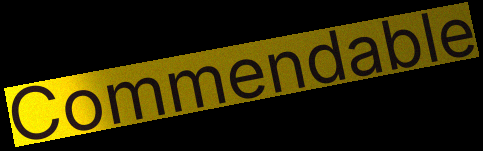
Commendable